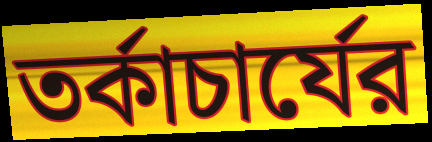
তর্কাচার্যের